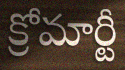
క్రోమార్టీ